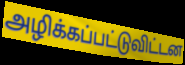
அழிக்கப்பட்டுவிட்டன